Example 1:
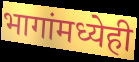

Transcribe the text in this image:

भागांमध्येही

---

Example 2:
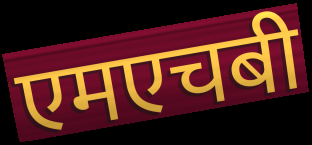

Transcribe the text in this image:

एमएचबी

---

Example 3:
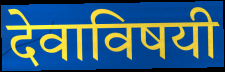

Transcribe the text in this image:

देवाविषयी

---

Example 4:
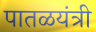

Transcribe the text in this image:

पातळयंत्री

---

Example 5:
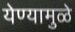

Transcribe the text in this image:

येण्यामुळे